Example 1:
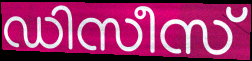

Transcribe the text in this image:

ഡിസീസ്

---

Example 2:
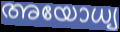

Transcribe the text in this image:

അയോധ്യ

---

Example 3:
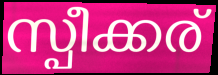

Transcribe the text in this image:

സ്പീക്കര്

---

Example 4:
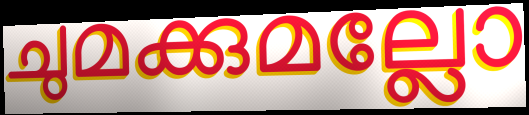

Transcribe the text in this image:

ചുമക്കുമല്ലോ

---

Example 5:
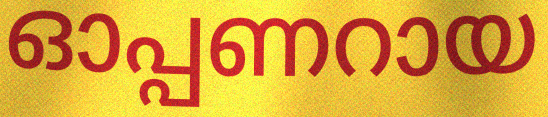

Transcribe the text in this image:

ഓപ്പണറായ